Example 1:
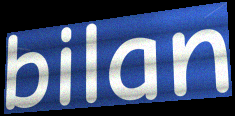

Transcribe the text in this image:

bilan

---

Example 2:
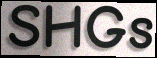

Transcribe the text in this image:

SHGs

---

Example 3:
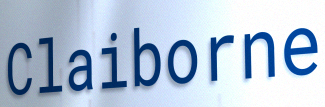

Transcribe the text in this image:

Claiborne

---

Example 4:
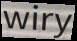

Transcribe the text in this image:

wiry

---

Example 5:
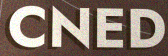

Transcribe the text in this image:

CNED